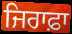
ਜਿਰਾਫ਼ਾ